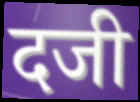
दजी